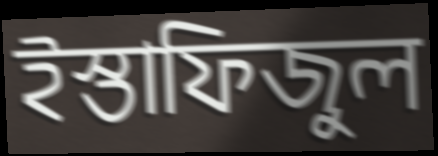
ইস্তাফিজুল